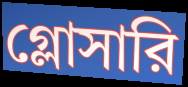
গ্লোসারি